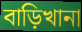
বাড়িখানা